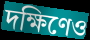
দক্ষিণেও